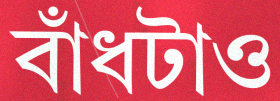
বাঁধটাও